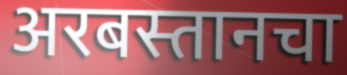
अरबस्तानचा